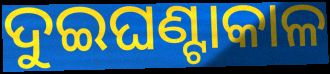
ଦୁଇଘଣ୍ଟାକାଳ